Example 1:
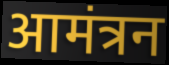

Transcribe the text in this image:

आमंत्रन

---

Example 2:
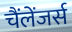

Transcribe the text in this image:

चैंलेंजर्स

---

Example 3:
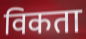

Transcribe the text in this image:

विकता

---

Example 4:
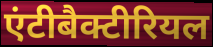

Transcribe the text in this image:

एंटीबैक्टीरियल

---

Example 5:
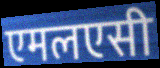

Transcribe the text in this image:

एमलएसी